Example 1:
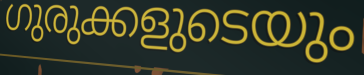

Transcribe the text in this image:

ഗുരുക്കളുടെയും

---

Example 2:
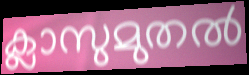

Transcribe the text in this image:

ക്ലാസുമുതൽ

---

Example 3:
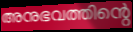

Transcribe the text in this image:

അനുഭവത്തിന്റെ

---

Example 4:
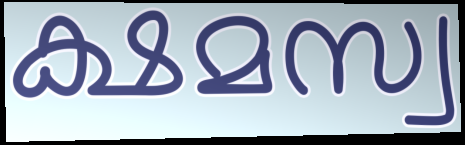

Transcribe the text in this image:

ക്ഷമസ്വ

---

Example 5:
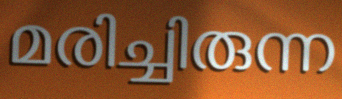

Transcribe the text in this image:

മരിച്ചിരുന്ന